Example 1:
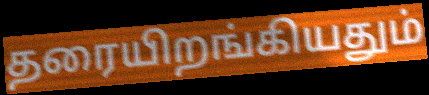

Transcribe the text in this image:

தரையிறங்கியதும்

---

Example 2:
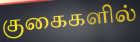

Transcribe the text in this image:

குகைகளில்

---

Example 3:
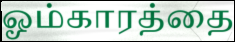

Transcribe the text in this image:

ஓம்காரத்தை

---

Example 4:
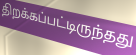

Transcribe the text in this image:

திறக்கப்பட்டிருந்தது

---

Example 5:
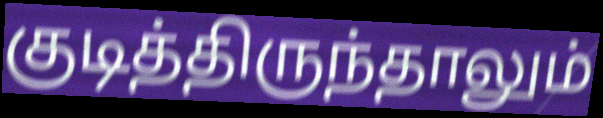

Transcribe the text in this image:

குடித்திருந்தாலும்